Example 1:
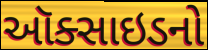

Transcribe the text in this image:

ઑક્સાઇડનો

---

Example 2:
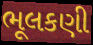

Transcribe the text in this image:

ભૂલકણી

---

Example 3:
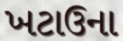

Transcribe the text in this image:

ખટાઉના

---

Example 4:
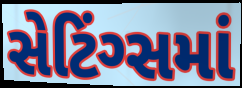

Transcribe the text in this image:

સેટિંગ્સમાં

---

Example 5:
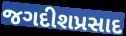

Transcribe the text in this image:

જગદીશપ્રસાદ